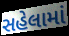
સહેલામાં